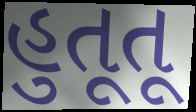
હુતૂતૂ